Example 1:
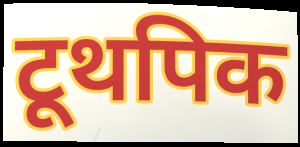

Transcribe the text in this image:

टूथपिक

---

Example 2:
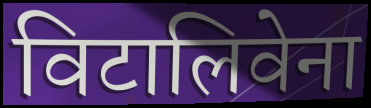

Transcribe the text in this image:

विटालिवेना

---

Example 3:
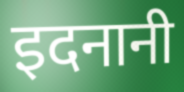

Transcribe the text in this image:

इदनानी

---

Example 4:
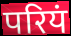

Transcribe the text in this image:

परियं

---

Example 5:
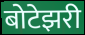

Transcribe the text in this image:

बोटेझरी